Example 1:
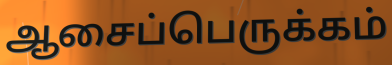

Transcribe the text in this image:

ஆசைப்பெருக்கம்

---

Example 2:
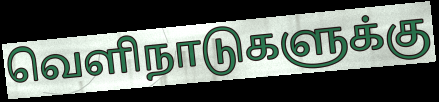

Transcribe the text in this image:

வெளிநாடுகளுக்கு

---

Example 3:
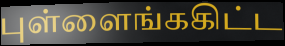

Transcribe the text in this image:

புள்ளைங்ககிட்ட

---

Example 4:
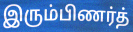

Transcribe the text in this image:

இரும்பிணர்த்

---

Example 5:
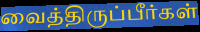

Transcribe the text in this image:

வைத்திருப்பீர்கள்